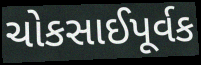
ચોકસાઈપૂર્વક